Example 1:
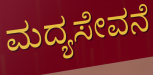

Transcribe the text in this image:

ಮದ್ಯಸೇವನೆ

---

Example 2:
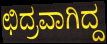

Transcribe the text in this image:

ಛಿದ್ರವಾಗಿದ್ದ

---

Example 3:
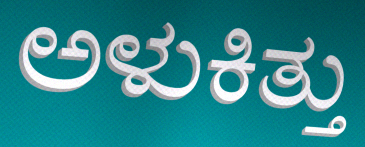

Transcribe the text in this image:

ಅಳುಕಿತ್ತು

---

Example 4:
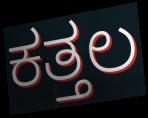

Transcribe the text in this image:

ಕತ್ತಲ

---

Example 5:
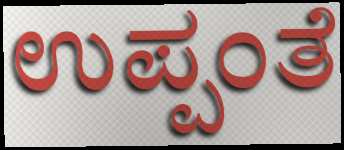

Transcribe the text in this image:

ಉಪ್ಪಂತೆ